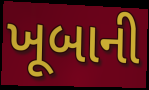
ખૂબાની